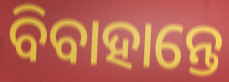
ବିବାହାନ୍ତେ